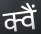
क्वैं